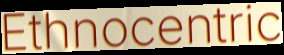
Ethnocentric